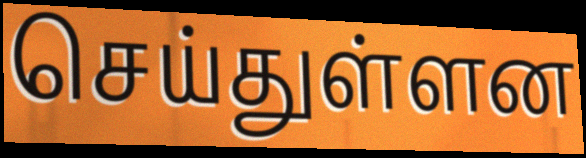
செய்துள்ளன